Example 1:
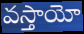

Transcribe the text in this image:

వస్తాయో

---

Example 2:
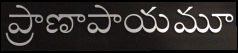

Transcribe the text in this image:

ప్రాణాపాయమూ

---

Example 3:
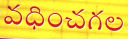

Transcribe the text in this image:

వధించగల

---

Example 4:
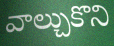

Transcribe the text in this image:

వాల్చుకొని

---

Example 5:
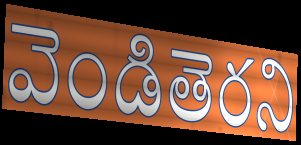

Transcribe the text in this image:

వెండితెరని